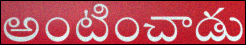
అంటించాడు